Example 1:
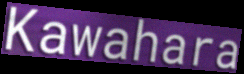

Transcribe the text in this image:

Kawahara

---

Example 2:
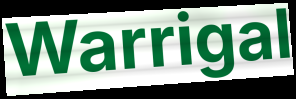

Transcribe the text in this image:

Warrigal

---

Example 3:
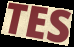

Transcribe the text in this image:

TES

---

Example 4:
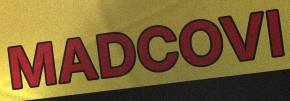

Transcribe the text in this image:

MADCOVI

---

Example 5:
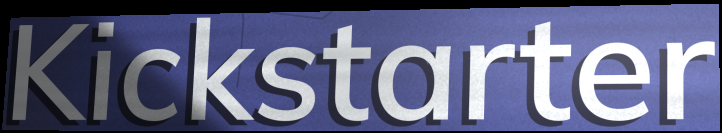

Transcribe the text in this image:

Kickstarter